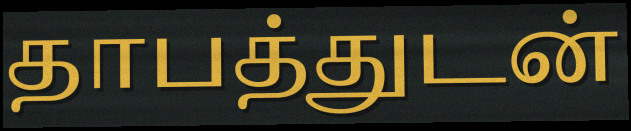
தாபத்துடன்